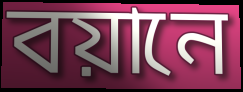
বয়ানে